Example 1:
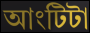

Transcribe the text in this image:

আংটিটা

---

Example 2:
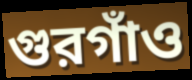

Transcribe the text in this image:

গুরগাঁও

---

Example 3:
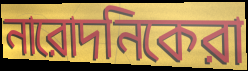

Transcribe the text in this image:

নারোদনিকেরা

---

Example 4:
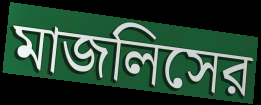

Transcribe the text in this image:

মাজলিসের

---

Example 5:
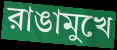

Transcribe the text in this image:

রাঙামুখে